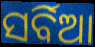
ସର୍ବିଆ